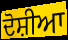
ਦੋਸ਼ੀਆ